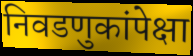
निवडणुकांपेक्षा